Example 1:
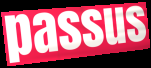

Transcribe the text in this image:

passus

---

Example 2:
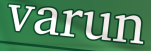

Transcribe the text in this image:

varun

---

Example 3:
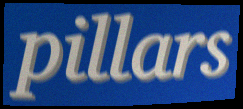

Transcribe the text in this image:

pillars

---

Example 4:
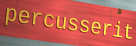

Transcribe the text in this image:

percusserit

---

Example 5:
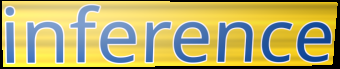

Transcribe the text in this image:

inference